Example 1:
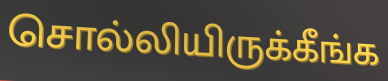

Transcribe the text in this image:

சொல்லியிருக்கீங்க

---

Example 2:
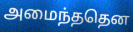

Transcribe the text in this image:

அமைந்ததென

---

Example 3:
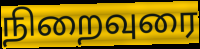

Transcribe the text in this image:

நிறைவுரை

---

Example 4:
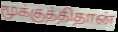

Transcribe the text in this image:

மூக்குத்திதான்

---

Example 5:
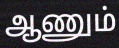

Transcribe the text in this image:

ஆணும்